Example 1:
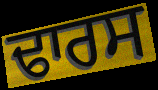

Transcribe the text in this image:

ਢਾਰਸ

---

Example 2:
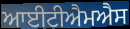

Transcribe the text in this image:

ਆਈਟੀਐਮਐਸ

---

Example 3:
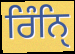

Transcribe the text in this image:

ਰਿੰਨਿੑ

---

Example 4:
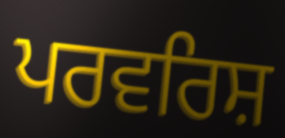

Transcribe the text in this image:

ਪਰਵਰਿਸ਼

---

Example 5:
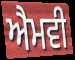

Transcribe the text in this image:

ਐਮਵੀ